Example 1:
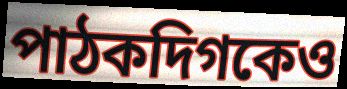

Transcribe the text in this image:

পাঠকদিগকেও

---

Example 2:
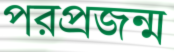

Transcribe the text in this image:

পরপ্রজন্ম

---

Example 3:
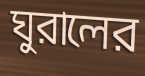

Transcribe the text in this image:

ঘুরালের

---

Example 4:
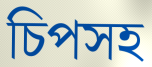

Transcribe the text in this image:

চিপসহ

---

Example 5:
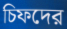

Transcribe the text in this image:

চিফদের